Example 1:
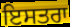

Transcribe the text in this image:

ਇਸਤਰਾ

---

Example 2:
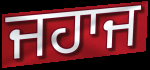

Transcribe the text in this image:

ਜਹਾਜ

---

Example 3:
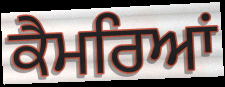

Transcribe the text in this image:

ਕੈਮਰਿਆਂ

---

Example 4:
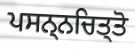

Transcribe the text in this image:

ਪਸਨ੍ਨਚਿਤ੍ਤੋ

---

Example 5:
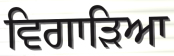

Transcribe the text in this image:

ਵਿਗਾੜਿਆ